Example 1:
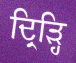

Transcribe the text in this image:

ਦ੍ਰਿੜ੍ਹਿ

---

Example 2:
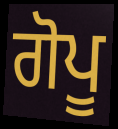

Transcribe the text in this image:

ਗੋਪੂ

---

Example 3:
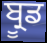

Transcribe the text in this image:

ਬ੍ਰੂਡ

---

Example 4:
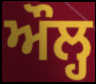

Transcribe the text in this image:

ਔਲ੍ਹ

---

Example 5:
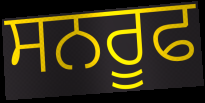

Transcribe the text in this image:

ਸਨਰੂਫ